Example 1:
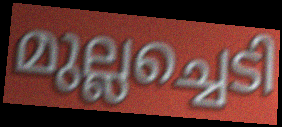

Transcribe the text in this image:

മുല്ലച്ചെടി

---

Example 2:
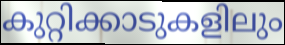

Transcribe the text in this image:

കുറ്റിക്കാടുകളിലും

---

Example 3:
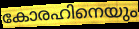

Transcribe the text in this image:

കോരഹിനെയും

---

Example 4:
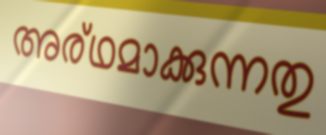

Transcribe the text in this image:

അര്ഥമാക്കുന്നതു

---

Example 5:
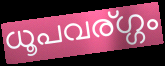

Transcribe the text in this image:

ധൂപവര്ഗ്ഗം